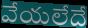
వేయలేదే